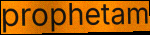
prophetam